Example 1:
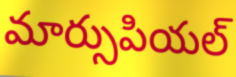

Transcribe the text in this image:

మార్సుపియల్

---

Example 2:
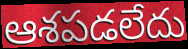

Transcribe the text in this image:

ఆశపడలేదు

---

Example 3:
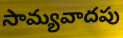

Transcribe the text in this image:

సామ్యవాదపు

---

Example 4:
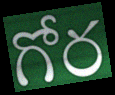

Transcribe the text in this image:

గోర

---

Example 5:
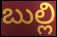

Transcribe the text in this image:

బుల్లి